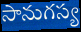
సానుగస్య